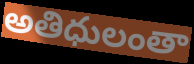
అతిధులంతా